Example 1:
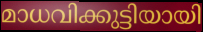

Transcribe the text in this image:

മാധവിക്കുട്ടിയായി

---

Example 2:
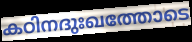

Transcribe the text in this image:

കഠിനദുഃഖത്തോടെ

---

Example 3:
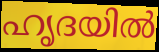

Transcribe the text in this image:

ഹൃദയിൽ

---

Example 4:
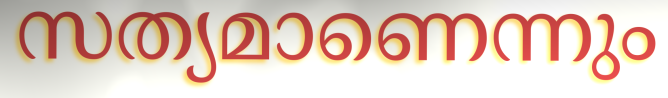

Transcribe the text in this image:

സത്യമാണെന്നും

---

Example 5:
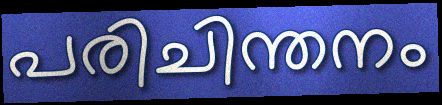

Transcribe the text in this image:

പരിചിന്തനം